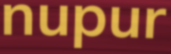
nupur